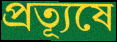
প্রত্যূষে